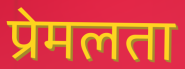
प्रेमलता